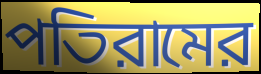
পতিরামের